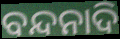
ବନ୍ଦନାଦି